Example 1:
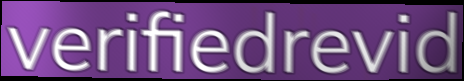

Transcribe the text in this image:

verifiedrevid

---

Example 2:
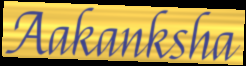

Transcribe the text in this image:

Aakanksha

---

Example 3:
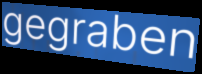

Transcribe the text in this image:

gegraben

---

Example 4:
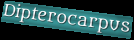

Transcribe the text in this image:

Dipterocarpus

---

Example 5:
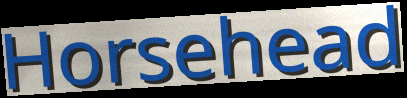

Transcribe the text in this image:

Horsehead